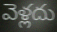
వెళ్లదు